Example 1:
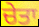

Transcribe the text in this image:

ਚੇਤਾ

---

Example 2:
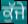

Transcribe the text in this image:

ਕੁੱਜੇ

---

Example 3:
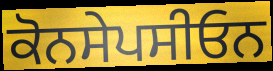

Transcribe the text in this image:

ਕੋਨਸੇਪਸੀਓਨ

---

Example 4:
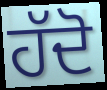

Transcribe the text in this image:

ਹੱਦੋ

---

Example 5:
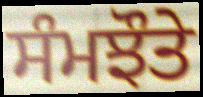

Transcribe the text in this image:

ਸੰਮਝੌਤੇ